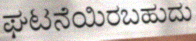
ಘಟನೆಯಿರಬಹುದು